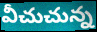
వీచుచున్న